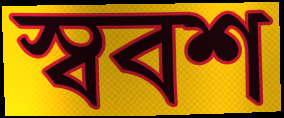
স্ববশ